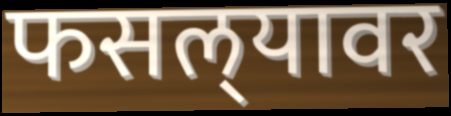
फसल्यावर